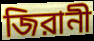
জিরানী